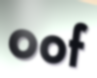
oof